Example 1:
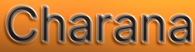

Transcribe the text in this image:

Charana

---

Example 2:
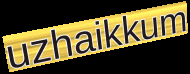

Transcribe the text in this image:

uzhaikkum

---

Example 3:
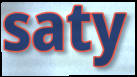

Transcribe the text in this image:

saty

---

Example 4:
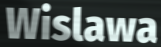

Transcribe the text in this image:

Wislawa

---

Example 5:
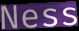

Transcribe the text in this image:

Ness